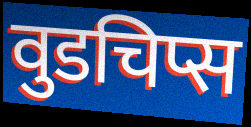
वुडचिप्स